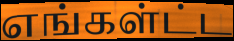
எங்கள்ட்ட